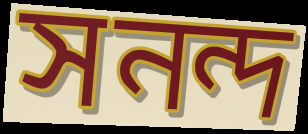
সনন্দ